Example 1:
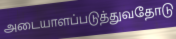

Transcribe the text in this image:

அடையாளப்படுத்துவதோடு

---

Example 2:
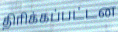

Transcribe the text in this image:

திரிக்கப்பட்டன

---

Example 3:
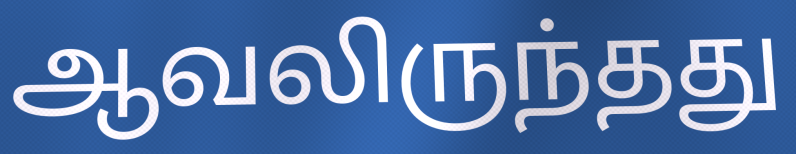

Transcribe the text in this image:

ஆவலிருந்தது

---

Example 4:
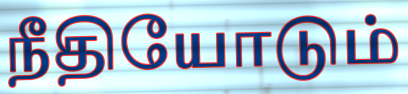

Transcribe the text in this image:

நீதியோடும்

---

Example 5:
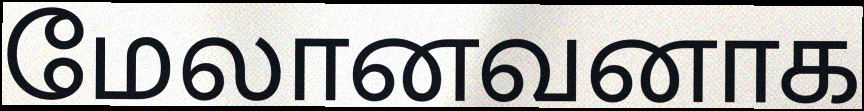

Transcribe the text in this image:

மேலானவனாக